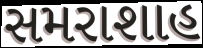
સમરાશાહ